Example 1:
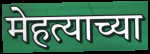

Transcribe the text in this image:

मेहत्याच्या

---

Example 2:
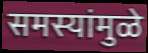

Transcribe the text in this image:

समस्यांमुळे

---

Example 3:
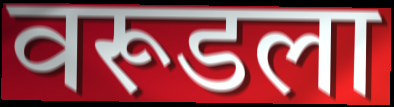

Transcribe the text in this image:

वरूडला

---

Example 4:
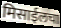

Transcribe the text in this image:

मिसाईलचा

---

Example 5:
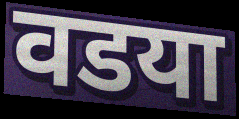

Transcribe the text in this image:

वडया